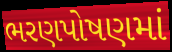
ભરણપોષણમાં